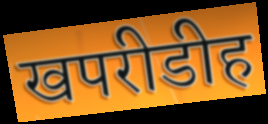
खपरीडीह